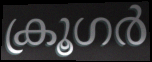
ക്രൂഗർ